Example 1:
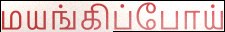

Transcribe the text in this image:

மயங்கிப்போய்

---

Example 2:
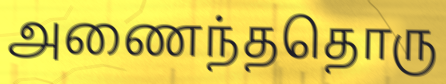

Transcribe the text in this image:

அணைந்ததொரு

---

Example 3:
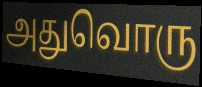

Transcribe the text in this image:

அதுவொரு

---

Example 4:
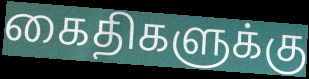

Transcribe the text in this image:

கைதிகளுக்கு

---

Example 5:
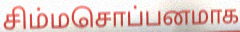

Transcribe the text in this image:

சிம்மசொப்பனமாக